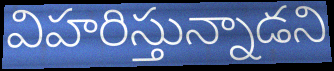
విహరిస్తున్నాడని